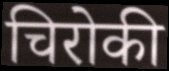
चिरोकी